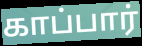
காப்பார்